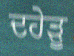
ਦਹੇੜੂ